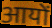
आयों